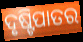
ଦୃଷ୍ଟିପାତର